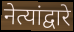
नेत्यांद्वारे